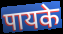
पायके